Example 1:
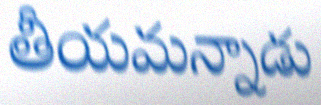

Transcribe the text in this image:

తీయమన్నాడు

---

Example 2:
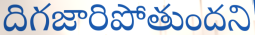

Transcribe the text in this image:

దిగజారిపోతుందని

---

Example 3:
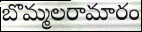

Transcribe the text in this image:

బొమ్మలరామారం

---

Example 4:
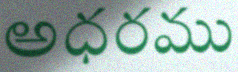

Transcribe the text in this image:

అధరము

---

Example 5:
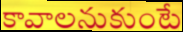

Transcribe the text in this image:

కావాలనుకుంటే